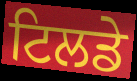
ਟਿਲਡੇ